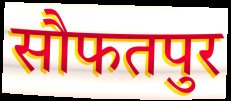
सौफतपुर